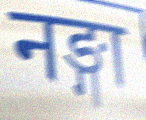
नङ्गा